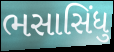
ભસાસિંધુ